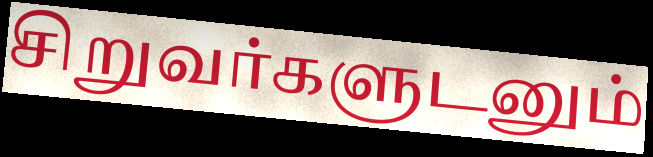
சிறுவர்களுடனும்